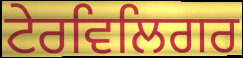
ਟੇਰਵਿਲਿਗਰ